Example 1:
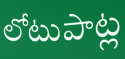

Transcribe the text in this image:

లోటుపాట్ల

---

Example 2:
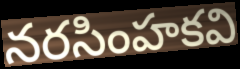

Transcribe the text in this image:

నరసింహకవి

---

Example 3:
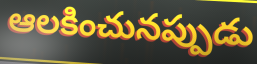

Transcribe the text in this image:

ఆలకించునప్పుడు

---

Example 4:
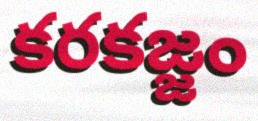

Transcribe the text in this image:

కరకజ్జం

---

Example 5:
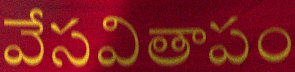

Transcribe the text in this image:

వేసవితాపం